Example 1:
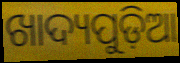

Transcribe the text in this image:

ଖାଦ୍ୟପୁଡ଼ିଆ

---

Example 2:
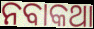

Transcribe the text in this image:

ନବାକଥା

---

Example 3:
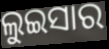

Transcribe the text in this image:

ଲୁଇସାର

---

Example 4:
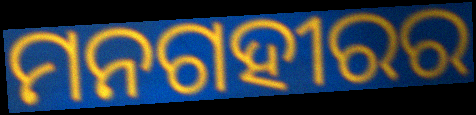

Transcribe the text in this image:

ମନଗହୀରର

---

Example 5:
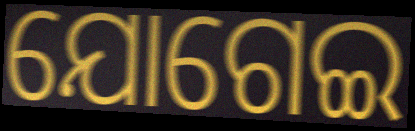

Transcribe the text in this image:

ଯୋଗେଇ